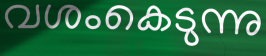
വശംകെടുന്നു